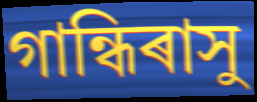
গান্ধিৰাসু